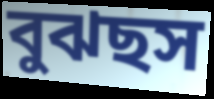
বুঝছস